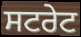
ਸਟਰੇਟ